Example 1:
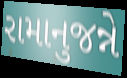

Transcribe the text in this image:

રામાનુજન્ને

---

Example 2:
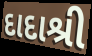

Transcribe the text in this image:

દાદાશ્રી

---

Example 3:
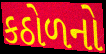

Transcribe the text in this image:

કઠોળનો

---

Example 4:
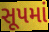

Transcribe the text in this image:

સૂપમાં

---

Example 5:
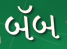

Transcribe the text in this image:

બૅબ